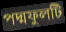
পদ্মফুলটি